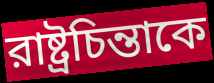
রাষ্ট্রচিন্তাকে